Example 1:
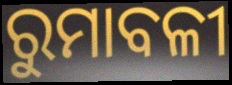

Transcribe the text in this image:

ରୁମାବଳୀ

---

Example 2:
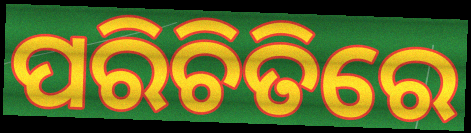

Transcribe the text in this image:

ପରିଚିତିରେ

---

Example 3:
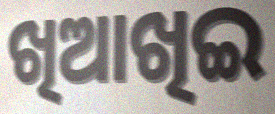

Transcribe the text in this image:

ଖିଆଖିଇ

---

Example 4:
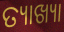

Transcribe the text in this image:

ତ୍ୟାଖ୍ୟା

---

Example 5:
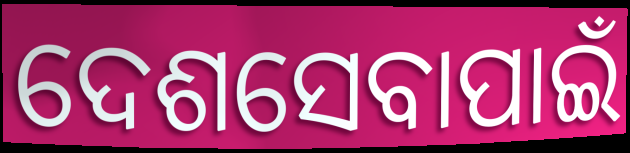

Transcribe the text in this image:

ଦେଶସେବାପାଇଁ